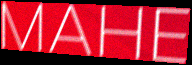
MAHE